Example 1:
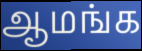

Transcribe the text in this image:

ஆமங்க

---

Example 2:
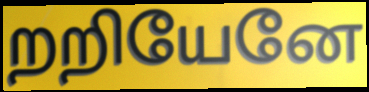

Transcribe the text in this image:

றறியேனே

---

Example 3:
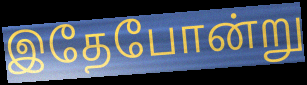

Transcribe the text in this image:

இதேபோன்று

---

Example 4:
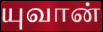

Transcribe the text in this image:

யுவான்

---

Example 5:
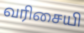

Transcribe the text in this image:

வரிசையி